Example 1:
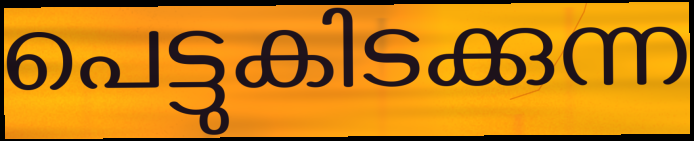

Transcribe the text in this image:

പെട്ടുകിടക്കുന്ന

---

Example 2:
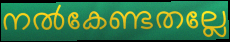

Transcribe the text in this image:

നൽകേണ്ടതല്ലേ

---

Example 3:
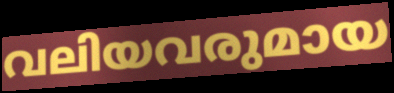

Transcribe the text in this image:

വലിയവരുമായ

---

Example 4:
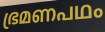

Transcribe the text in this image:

ഭ്രമണപഥം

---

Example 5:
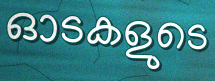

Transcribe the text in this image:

ഓടകളുടെ